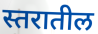
स्तरातील